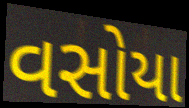
વસોયા